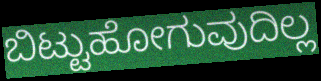
ಬಿಟ್ಟುಹೋಗುವುದಿಲ್ಲ